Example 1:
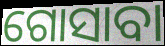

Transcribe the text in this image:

ଗୋସାବା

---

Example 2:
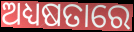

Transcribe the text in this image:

ଅଧ୍ୟଷତାରେ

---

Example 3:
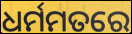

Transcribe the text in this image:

ଧର୍ମମତରେ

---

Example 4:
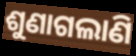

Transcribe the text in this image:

ଶୁଣାଗଲାଣି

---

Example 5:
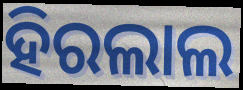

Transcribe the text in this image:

ହିରଲାଲ